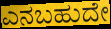
ಎನಬಹುದೇ